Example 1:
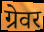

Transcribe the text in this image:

ग्रेवर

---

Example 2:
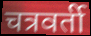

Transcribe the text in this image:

चत्रवर्ती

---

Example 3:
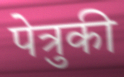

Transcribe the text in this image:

पेत्रुकी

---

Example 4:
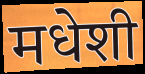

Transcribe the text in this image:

मधेशी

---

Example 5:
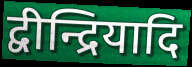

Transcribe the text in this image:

द्वीन्द्रियादि